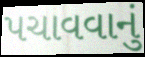
પચાવવાનું